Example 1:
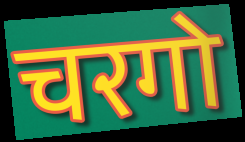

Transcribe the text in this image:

चरगो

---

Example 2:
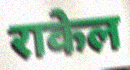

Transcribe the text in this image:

राकेल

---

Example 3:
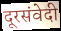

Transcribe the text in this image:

दूरसंवेदी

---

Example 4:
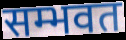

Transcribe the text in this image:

सम्भवत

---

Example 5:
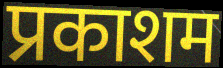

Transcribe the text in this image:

प्रकाशम